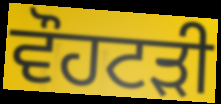
ਵੌਹਟੜੀ